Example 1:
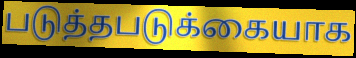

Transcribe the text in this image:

படுத்தபடுக்கையாக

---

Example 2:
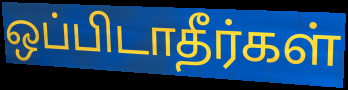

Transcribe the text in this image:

ஒப்பிடாதீர்கள்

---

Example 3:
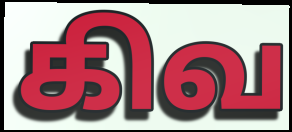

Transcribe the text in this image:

கிவ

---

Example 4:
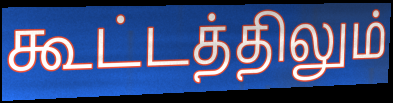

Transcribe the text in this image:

கூட்டத்திலும்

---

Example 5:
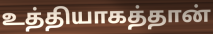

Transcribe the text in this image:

உத்தியாகத்தான்